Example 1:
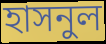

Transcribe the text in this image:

হাসনুল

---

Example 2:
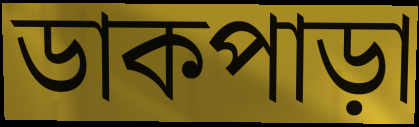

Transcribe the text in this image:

ডাকপাড়া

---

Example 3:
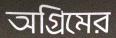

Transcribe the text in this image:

অগ্রিমের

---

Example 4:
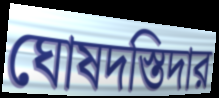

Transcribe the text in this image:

ঘোষদস্তিদার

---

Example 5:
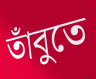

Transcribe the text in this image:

তাঁবুতে